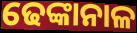
ଢେଙ୍କାନାଳ